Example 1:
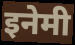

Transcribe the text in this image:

इनेमी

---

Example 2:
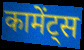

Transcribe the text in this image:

कामेंट्स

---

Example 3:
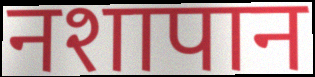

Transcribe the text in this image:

नशापान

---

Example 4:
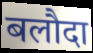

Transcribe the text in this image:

बलौदा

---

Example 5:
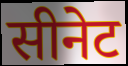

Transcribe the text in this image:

सीनेट